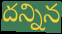
దన్నిన